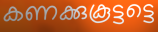
കണക്കുകൂട്ടട്ടെ